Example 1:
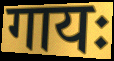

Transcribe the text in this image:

गायः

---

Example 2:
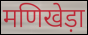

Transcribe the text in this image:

मणिखेड़ा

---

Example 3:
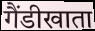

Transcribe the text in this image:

गैंडीखाता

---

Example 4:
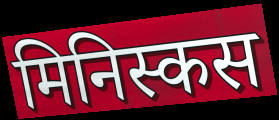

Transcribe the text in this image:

मिनिस्कस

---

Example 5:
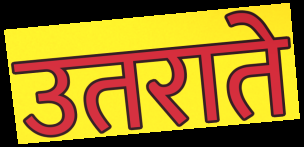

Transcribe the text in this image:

उतराते